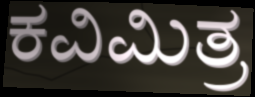
ಕವಿಮಿತ್ರ